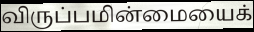
விருப்பமின்மையைக்